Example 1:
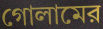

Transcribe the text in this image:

গোলামের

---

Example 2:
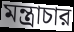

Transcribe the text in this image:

মন্ত্রাচার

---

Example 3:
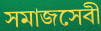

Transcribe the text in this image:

সমাজসেবী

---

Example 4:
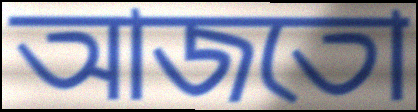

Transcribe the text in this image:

আজতো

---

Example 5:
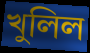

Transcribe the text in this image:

খুলিল